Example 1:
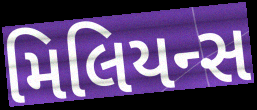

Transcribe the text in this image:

મિલિયન્સ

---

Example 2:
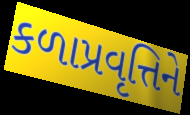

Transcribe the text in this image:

કળાપ્રવૃત્તિને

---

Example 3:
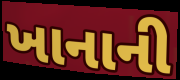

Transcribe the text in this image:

ખાનાની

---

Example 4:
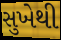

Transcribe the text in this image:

સુખેથી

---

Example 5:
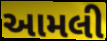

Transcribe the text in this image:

આમલી